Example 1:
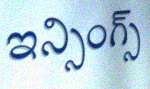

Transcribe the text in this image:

ఇన్సింగ్స్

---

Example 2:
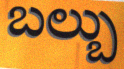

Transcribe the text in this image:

బల్బు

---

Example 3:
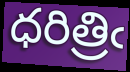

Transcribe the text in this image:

ధరిత్రిఁ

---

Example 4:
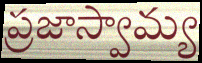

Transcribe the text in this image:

ప్రజాస్వామ్య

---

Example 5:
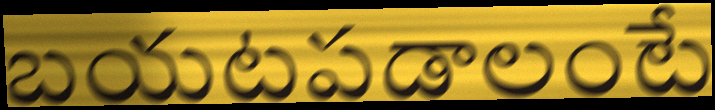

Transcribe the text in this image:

బయటపడాలంటే